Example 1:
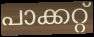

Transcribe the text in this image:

പാക്കറ്റ്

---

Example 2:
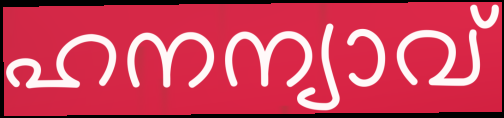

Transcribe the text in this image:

ഹനന്യാവ്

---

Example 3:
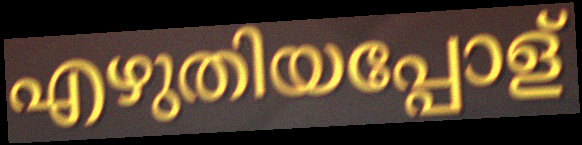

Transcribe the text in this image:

എഴുതിയപ്പോള്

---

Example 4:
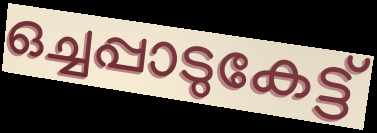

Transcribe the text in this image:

ഒച്ചപ്പാടുകേട്ട്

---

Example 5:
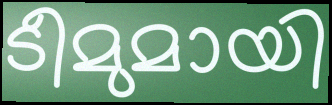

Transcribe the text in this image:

ടീമുമായി